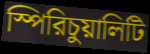
স্পিরিচুয়ালিটি